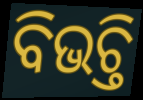
ବିଭଚ୍ତି